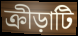
ক্রীড়াটি